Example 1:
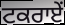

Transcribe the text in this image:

ਟਕਰਾਏਂ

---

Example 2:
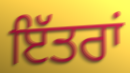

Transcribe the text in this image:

ਇੱਤਰਾਂ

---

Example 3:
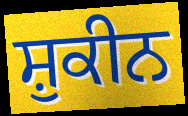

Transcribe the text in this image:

ਸ਼ੁਕੀਨ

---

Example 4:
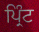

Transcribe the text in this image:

ਪ੍ਰਿੰਟ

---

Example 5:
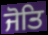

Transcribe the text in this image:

ਜੋਤਿ